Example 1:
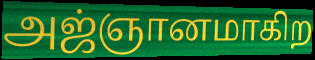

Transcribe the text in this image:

அஜ்ஞானமாகிற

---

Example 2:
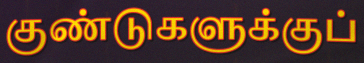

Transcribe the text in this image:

குண்டுகளுக்குப்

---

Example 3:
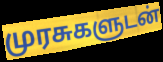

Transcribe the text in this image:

முரசுகளுடன்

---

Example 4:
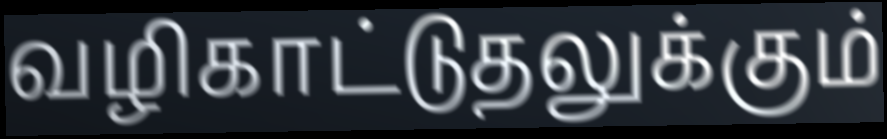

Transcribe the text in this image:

வழிகாட்டுதலுக்கும்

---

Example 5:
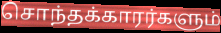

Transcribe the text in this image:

சொந்தக்காரர்களும்